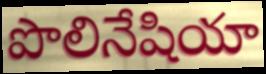
పొలినేషియా